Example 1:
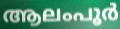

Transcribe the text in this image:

ആലംപൂർ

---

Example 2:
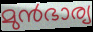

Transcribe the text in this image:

മുൻഭാര്യ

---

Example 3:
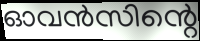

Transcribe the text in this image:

ഓവൻസിന്റെ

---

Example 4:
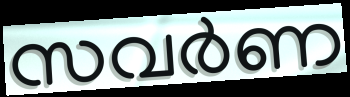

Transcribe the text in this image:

സവർണ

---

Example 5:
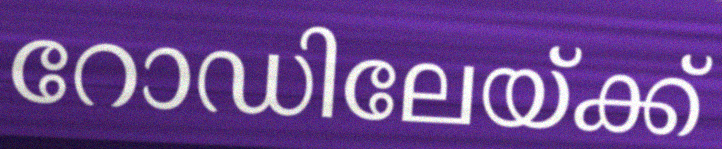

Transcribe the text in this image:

റോഡിലേയ്ക്ക്